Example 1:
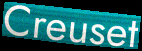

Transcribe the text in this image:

Creuset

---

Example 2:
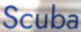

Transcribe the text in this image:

Scuba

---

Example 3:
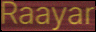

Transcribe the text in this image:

Raayar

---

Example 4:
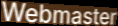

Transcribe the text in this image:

Webmaster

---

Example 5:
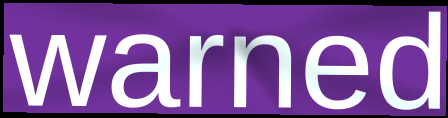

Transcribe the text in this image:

warned